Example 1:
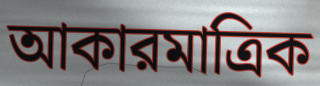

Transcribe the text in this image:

আকারমাত্রিক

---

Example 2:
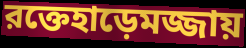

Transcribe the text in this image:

রক্তেহাড়েমজ্জায়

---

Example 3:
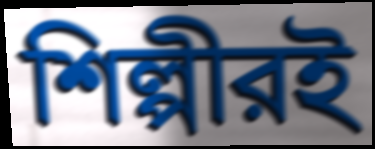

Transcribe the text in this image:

শিল্পীরই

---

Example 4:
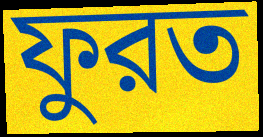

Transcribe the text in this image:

ফুরত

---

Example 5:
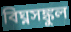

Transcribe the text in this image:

বিঘ্নসঙ্কুল